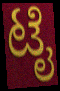
ಟೈ